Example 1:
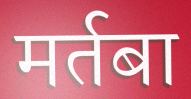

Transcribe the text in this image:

मर्तबा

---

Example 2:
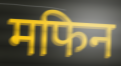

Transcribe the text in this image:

मफिन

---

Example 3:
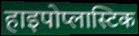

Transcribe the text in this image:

हाइपोप्लास्टिक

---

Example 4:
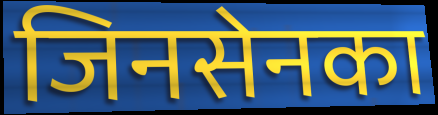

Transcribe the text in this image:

जिनसेनका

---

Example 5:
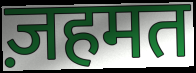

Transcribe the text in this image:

ज़हमत